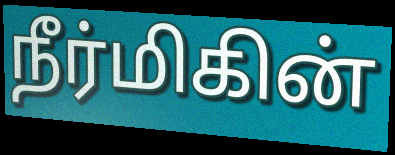
நீர்மிகின்